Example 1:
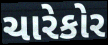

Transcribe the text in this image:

ચારેકોર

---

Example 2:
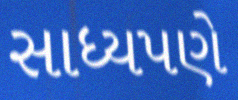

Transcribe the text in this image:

સાધ્યપણે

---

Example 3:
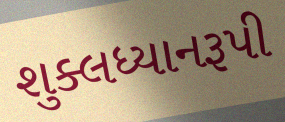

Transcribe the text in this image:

શુક્લધ્યાનરૂપી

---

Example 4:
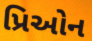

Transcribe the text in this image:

પ્રિઓન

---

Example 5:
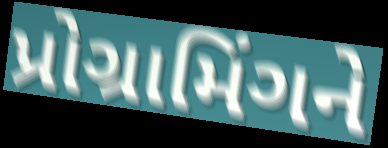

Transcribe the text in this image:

પ્રોગ્રામિંગને